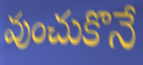
వుంచుకొనే